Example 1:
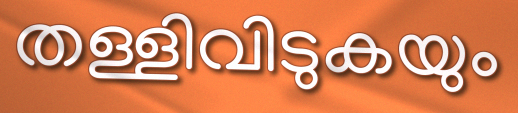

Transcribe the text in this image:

തള്ളിവിടുകയും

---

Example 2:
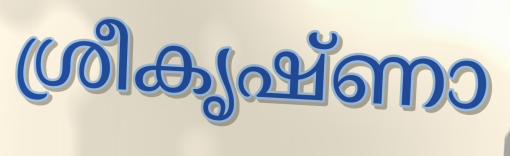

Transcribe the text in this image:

ശ്രീകൃഷ്ണാ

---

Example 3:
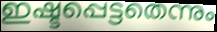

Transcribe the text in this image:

ഇഷ്ടപ്പെട്ടതെന്നും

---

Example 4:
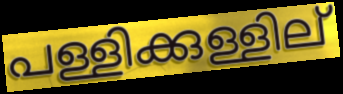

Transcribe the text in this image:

പള്ളിക്കുള്ളില്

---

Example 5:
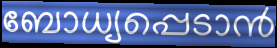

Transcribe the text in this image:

ബോധ്യപ്പെടാൻ